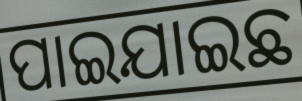
ପାଇଯାଇଛ